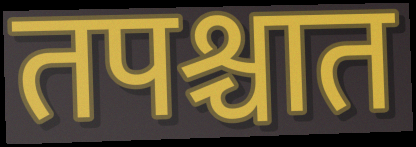
तपश्चात